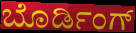
ಬೊರ್ಡಿಂಗ್